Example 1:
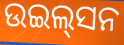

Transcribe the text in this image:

ଉଇଲ୍‌ସନ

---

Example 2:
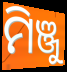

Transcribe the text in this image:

ମିଞ୍ଜୁ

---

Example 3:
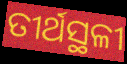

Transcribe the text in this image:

ତୀର୍ଥସ୍ଥଳୀ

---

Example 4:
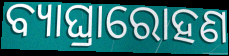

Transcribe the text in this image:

ବ୍ୟାଘ୍ରାରୋହଣ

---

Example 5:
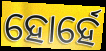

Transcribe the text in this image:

ହୋର୍ହେ